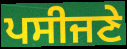
ਪਸੀਜਣੇ